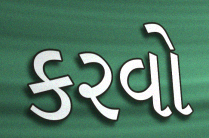
કરવો